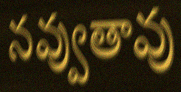
నవ్వుతావు